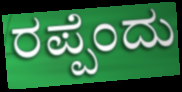
ರಪ್ಪೆಂದು